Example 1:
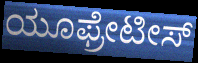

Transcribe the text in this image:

ಯೂಫ್ರೇಟೀಸ್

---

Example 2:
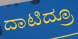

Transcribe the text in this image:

ದಾಟಿದ್ರೂ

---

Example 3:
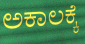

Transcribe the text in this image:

ಅಕಾಲಕ್ಕೆ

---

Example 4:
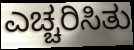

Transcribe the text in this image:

ಎಚ್ಚರಿಸಿತು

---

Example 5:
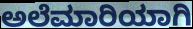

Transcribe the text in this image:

ಅಲೆಮಾರಿಯಾಗಿ